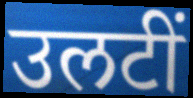
उलटीं